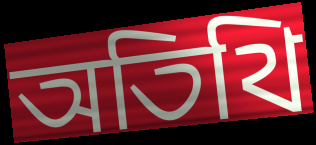
অতিথি